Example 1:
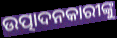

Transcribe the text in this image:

ଉତ୍ପାଦନକାରୀଙ୍କୁ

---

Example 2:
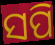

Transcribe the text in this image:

ସପି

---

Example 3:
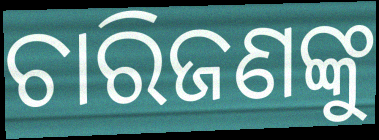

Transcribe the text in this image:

ଚାରିଜଣଙ୍କୁ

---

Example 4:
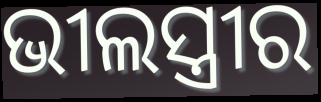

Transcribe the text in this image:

ଭୀଲସ୍ତ୍ରୀର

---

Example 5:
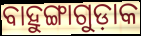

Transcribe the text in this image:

ବାହୁଙ୍ଗାଗୁଡ଼ାକ